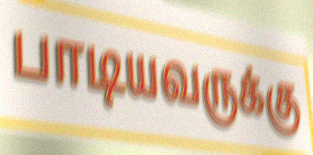
பாடியவருக்கு